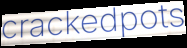
crackedpots